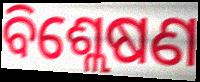
ବିଶ୍ଲେଷଣ